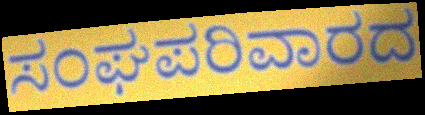
ಸಂಘಪರಿವಾರದ